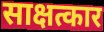
साक्षत्कार